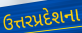
ઉત્તરપ્રદેશના